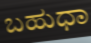
ಬಹುಧಾ